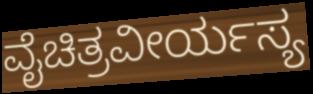
ವೈಚಿತ್ರವೀರ್ಯಸ್ಯ